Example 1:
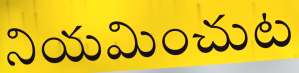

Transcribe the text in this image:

నియమించుట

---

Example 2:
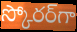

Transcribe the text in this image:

స్కోరర్‌గా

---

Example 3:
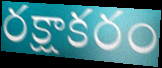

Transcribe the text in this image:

రక్షాకరం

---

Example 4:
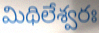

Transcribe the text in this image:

మిథిలేశ్వరః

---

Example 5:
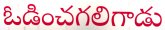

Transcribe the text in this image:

ఓడించగలిగాడు